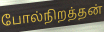
போல்நிறத்தன்